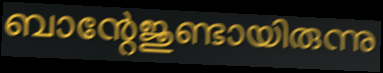
ബാന്റേജുണ്ടായിരുന്നു